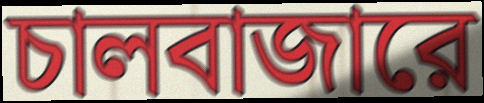
চালবাজারে